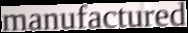
manufactured